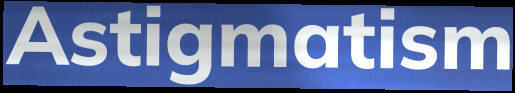
Astigmatism